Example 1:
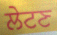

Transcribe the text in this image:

ਲੇਟਣ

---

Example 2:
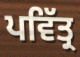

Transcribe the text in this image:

ਪਵਿੱਤ੍ਰ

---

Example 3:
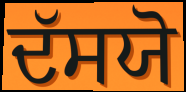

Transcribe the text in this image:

ਦੱਸਯੋ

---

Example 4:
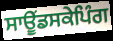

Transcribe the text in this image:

ਸਾਊਂਡਸਕੇਪਿੰਗ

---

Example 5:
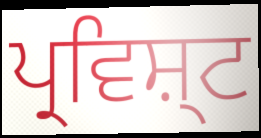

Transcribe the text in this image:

ਪ੍ਰਵਿਸ਼੍ਟ